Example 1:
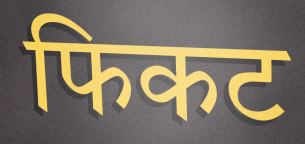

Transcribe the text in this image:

फिकट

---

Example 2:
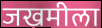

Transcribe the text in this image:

जखमीला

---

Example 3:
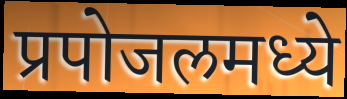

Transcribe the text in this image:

प्रपोजलमध्ये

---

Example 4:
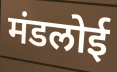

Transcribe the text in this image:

मंडलोई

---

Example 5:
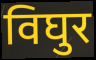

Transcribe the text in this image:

विघुर